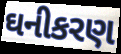
ઘનીકરણ